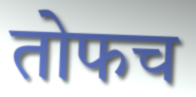
तोफच